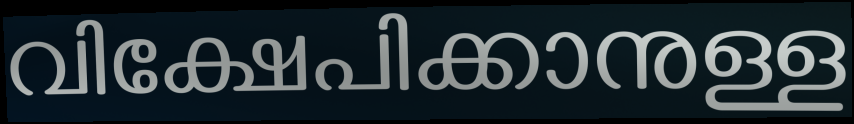
വിക്ഷേപിക്കാനുള്ള